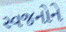
સ્વજનોને